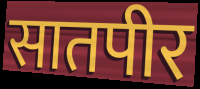
सातपीर